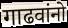
गाढवांनो